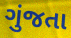
ગુંજતા